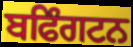
ਬਫਿੰਗਟਨ